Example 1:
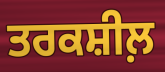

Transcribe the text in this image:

ਤਰਕਸ਼ੀਲ਼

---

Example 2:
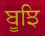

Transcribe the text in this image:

ਬੂਝਿ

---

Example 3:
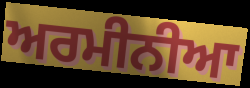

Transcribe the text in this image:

ਅਰਮੀਨੀਆ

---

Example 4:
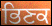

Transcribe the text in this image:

ਭਿਣਕ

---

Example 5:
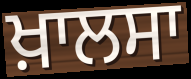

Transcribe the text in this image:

ਖ਼ਾਲਸਾ